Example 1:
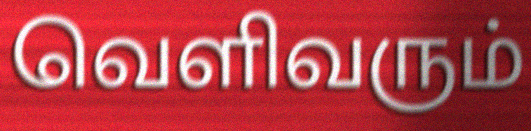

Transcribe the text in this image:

வெளிவரும்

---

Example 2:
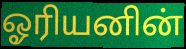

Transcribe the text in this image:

ஓரியனின்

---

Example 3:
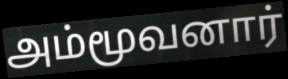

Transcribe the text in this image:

அம்மூவனார்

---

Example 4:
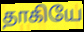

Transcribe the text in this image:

தாகியே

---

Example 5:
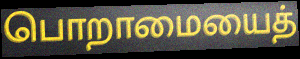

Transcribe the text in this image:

பொறாமையைத்